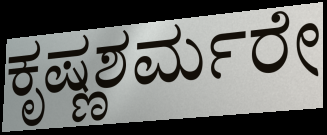
ಕೃಷ್ಣಶರ್ಮರೇ